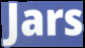
Jars